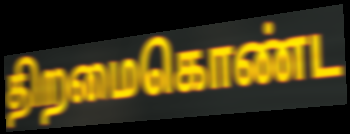
திறமைகொண்ட